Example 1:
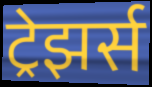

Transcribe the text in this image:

ट्रेझर्स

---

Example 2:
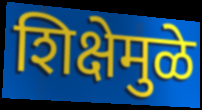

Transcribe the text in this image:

शिक्षेमुळे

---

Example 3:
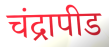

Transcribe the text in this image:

चंद्रापीड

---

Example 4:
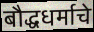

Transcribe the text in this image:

बौद्धधर्माचे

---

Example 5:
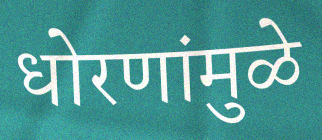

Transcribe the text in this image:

धोरणांमुळे